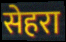
सेहरा